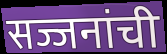
सज्जनांची